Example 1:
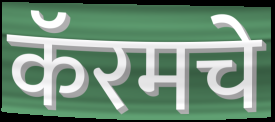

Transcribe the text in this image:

कॅरमचे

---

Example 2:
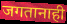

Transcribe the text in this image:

जगतानाही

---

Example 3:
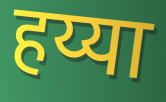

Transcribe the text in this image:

हय्या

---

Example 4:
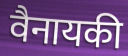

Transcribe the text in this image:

वैनायकी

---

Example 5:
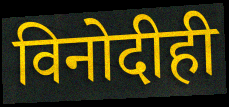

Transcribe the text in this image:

विनोदीही